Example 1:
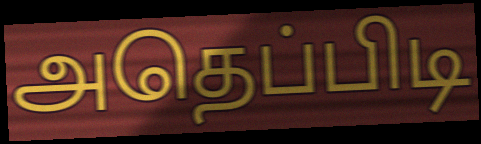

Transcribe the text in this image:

அதெப்பிடி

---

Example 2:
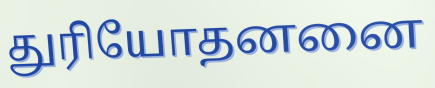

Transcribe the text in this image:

துரியோதனனை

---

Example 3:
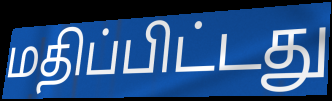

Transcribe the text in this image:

மதிப்பிட்டது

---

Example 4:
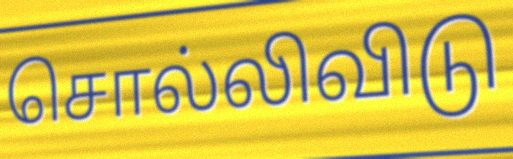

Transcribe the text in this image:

சொல்லிவிடு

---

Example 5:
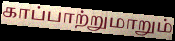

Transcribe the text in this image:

காப்பாற்றுமாறும்